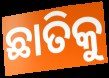
ଛାତିକୁ